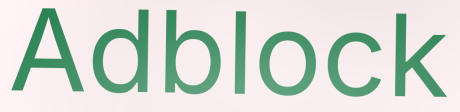
Adblock